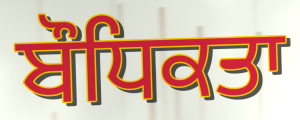
ਬੌਧਿਕਤਾ